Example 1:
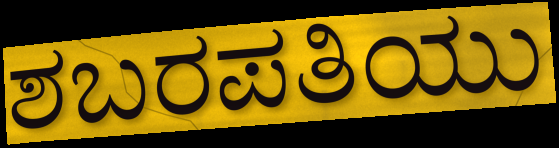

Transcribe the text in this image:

ಶಬರಪತಿಯು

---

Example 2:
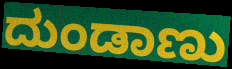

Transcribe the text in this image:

ದುಂಡಾಣು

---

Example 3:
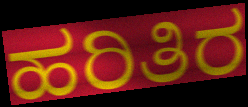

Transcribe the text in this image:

ಹರಿತಿರ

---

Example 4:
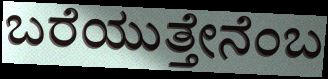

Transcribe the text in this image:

ಬರೆಯುತ್ತೇನೆಂಬ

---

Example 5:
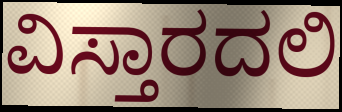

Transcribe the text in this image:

ವಿಸ್ತಾರದಲಿ